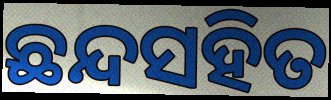
ଛନ୍ଦସହିତ